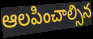
ఆలపించాల్సిన